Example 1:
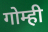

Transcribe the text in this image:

गोम्ही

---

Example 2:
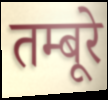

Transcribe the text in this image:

तम्बूरे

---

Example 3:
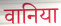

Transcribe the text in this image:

वानिया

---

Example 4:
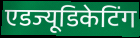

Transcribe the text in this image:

एडज्यूडिकेटिंग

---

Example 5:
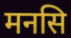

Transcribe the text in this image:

मनसि